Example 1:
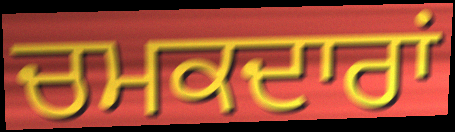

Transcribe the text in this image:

ਚਮਕਦਾਰਾਂ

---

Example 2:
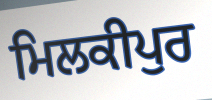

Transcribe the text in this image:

ਮਿਲਕੀਪੁਰ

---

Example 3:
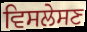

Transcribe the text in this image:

ਵਿਸਲੇਸਣ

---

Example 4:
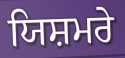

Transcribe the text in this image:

ਯਿਸ਼ਮਰੇ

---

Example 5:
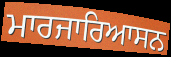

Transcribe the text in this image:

ਮਾਰਜਾਰਿਆਸਨ